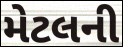
મેટલની